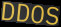
DDOS